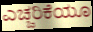
ಎಚ್ಚರಿಕೆಯೂ